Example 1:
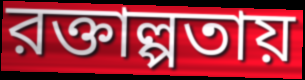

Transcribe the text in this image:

রক্তাল্পতায়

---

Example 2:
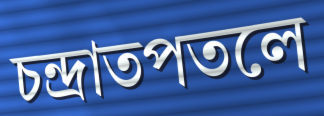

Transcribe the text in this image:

চন্দ্রাতপতলে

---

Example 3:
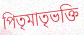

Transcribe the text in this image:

পিতৃমাতৃভক্তি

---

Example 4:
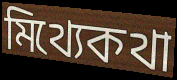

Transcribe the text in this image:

মিথ্যেকথা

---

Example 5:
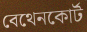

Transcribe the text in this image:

বেথেনকোর্ট